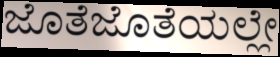
ಜೊತೆಜೊತೆಯಲ್ಲೇ